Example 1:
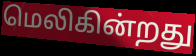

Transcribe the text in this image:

மெலிகின்றது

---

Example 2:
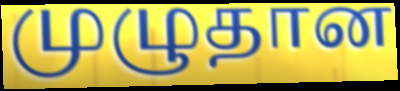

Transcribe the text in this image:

முழுதான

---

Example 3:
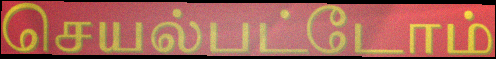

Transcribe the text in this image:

செயல்பட்டோம்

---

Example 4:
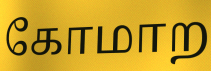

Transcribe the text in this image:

கோமாற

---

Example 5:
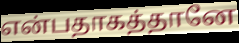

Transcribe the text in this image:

என்பதாகத்தானே